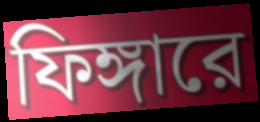
ফিঙ্গারে